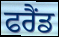
ਫਰੈਂਡ